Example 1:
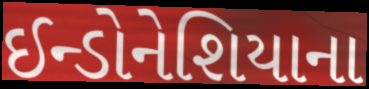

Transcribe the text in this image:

ઈન્ડોનેશિયાના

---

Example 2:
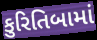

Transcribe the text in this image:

કુરિતિબામાં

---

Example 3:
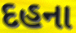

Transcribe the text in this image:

દહના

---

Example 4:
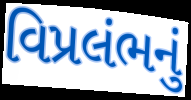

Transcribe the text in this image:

વિપ્રલંભનું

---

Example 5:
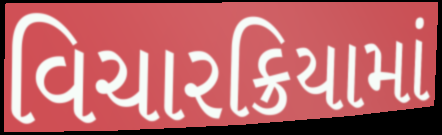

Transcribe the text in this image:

વિચારક્રિયામાં